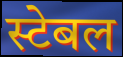
स्टेबल